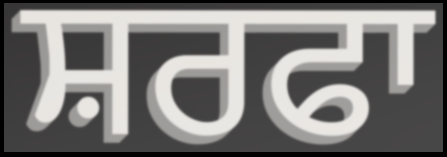
ਸ਼ਰਫਾ